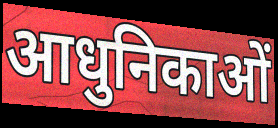
आधुनिकाओं